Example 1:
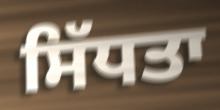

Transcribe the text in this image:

ਸਿੱਧਤਾ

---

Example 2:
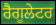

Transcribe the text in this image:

ਰੈਗੂਲੇਟਰ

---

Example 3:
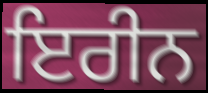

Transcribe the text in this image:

ਇਰੀਨ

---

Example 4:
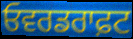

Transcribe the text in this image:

ਓਵਰਡਰਾਫ਼ਟ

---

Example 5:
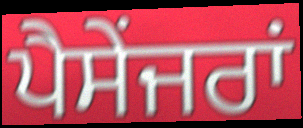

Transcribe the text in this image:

ਪੈਸੇਂਜਰਾਂ